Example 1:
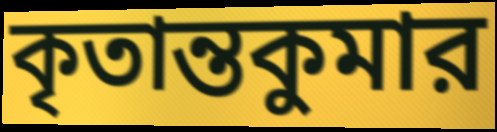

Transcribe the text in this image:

কৃতান্তকুমার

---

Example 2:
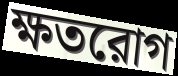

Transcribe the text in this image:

ক্ষতরোগ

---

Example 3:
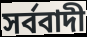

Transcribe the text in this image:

সর্ববাদী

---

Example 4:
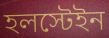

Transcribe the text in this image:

হলস্টেইন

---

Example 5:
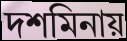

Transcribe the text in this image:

দশমিনায়